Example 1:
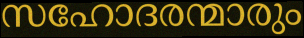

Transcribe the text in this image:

സഹോദരന്മാരും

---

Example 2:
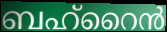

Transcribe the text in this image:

ബഹ്റൈൻ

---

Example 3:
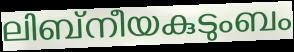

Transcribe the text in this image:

ലിബ്നീയകുടുംബം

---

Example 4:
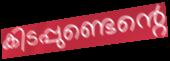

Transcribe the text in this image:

കിടപ്പുണ്ടെന്റെ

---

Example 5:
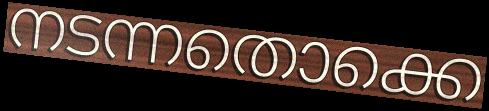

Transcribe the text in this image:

നടന്നതൊക്കെ